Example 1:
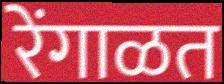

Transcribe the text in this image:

रेंगाळत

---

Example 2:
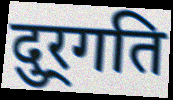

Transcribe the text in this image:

दुर्गति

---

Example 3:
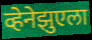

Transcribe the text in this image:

व्हेनेझुएला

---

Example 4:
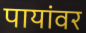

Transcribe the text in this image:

पायांवर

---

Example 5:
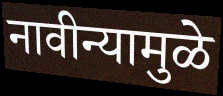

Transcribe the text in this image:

नावीन्यामुळे